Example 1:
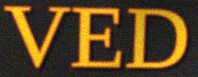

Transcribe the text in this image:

VED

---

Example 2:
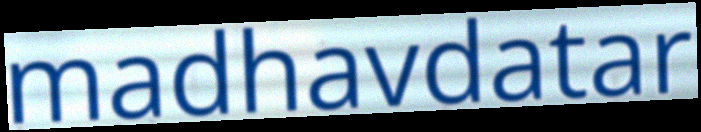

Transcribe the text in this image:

madhavdatar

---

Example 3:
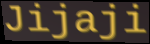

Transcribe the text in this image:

Jijaji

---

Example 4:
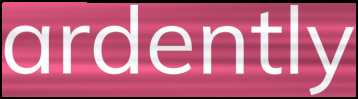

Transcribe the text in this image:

ardently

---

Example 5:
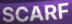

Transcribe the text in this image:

SCARF